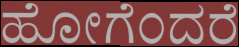
ಹೋಗೆಂದರೆ